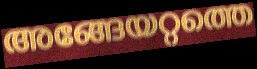
അങ്ങേയറ്റത്തെ